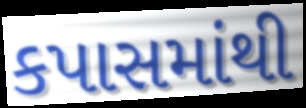
કપાસમાંથી